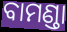
ବାମଣ୍ଡା